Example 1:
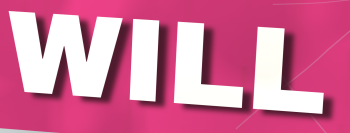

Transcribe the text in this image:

WILL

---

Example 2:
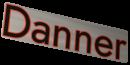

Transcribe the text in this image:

Danner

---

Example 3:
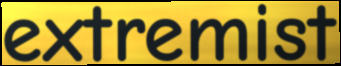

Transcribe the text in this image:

extremist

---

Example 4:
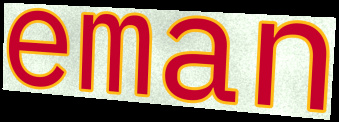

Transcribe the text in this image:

eman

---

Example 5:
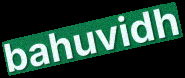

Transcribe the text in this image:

bahuvidh